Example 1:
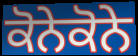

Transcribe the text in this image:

ਕੋਨੇਕੋਨੇ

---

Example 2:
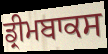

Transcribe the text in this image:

ਡ੍ਰੀਮਬਾਕਸ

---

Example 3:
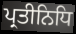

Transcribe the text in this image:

ਪ੍ਰਤੀਨਿਧਿ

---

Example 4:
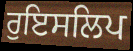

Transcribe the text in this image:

ਰੁਇਸਲਿਪ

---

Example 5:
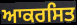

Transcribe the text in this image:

ਆਕਰਸਿਤ